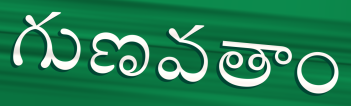
గుణవతాం